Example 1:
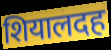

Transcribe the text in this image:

शियालदह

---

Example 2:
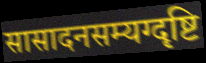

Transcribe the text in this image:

सासादनसम्यग्दृष्टि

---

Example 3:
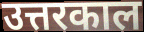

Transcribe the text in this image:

उत्तरकाल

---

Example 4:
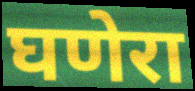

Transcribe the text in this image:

घणेरा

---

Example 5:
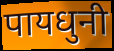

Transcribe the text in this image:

पायधुनी